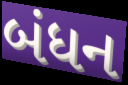
બંધન